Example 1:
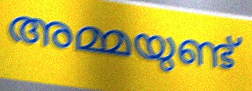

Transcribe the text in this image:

അമ്മയുണ്ട്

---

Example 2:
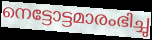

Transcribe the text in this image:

നെട്ടോട്ടമാരംഭിച്ചു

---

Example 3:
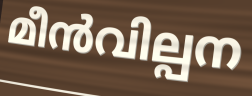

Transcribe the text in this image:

മീൻവില്പന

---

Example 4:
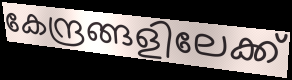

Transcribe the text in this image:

കേന്ദ്രങ്ങളിലേക്ക്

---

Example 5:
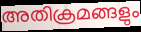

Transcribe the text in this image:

അതിക്രമങ്ങളും